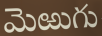
మెఱుగు